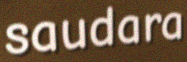
saudara